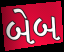
બેબ